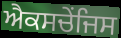
ਐਕਸਚੇਂਜਿਸ